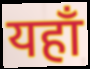
यहाँ